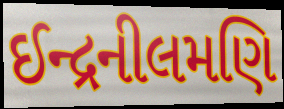
ઈન્દ્રનીલમણિ